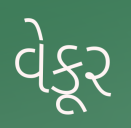
વેકૂર